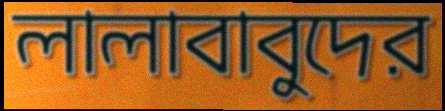
লালাবাবুদের